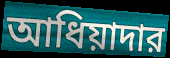
আধিয়াদার